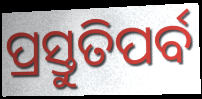
ପ୍ରସ୍ତୁତିପର୍ବ